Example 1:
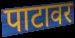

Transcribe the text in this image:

पाटावर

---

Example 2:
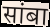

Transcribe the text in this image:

सांबा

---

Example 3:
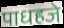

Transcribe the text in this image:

पाधहजे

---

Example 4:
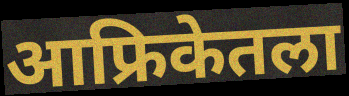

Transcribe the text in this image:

आफ्रिकेतला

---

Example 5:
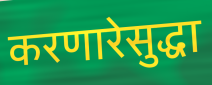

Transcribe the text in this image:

करणारेसुद्धा